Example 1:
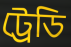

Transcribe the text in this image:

ট্রেডি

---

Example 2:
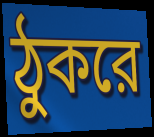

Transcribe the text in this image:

ঠুকরে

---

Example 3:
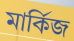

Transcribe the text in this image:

মার্কিজ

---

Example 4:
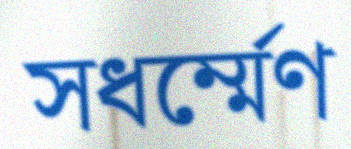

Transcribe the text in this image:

সধর্ম্মেণ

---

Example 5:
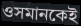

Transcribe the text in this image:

ওসমানকেই